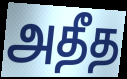
அதீத